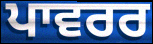
ਪਾਵਰਰ